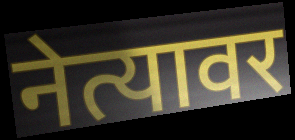
नेत्यावर